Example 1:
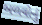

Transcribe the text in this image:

બળવોનું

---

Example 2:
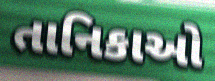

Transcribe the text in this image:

તાનિકાઓ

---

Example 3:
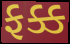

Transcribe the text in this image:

ફક્ક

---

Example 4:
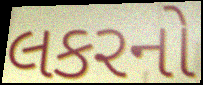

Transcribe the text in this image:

લકરનો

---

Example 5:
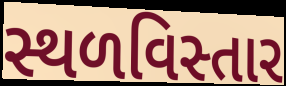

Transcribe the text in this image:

સ્થળવિસ્તાર